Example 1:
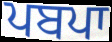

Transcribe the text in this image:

ਪਬਪਾ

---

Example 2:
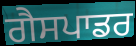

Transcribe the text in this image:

ਗੈਸਪਾਡਰ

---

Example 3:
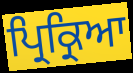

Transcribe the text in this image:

ਪ੍ਰਿਕ੍ਰਿਆ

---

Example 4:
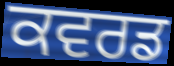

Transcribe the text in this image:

ਕਵਰਡ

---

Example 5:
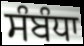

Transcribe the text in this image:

ਸੰਬੰਧਾ